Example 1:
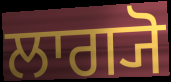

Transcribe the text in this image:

ਲਾਗ੍ਯੋ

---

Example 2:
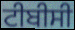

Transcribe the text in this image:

ਟੀਬੀਸੀ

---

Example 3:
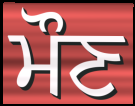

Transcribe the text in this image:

ਮੌਣ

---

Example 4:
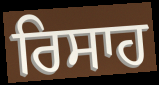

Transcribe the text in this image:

ਰਿਸਾਹ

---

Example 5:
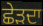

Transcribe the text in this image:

ਛੇੜਦਾ